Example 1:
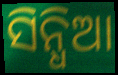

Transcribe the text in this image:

ସିନ୍ଧିଆ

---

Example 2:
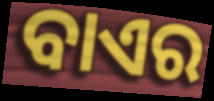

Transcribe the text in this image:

ବାଏର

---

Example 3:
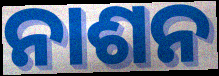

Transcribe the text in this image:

ନାଶନ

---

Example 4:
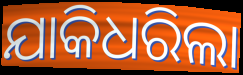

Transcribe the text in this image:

ଯାକିଧରିଲା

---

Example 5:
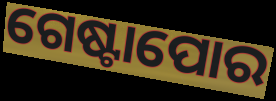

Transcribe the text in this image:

ଗେଷ୍ଟାପୋର